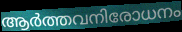
ആർത്തവനിരോധനം